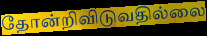
தோன்றிவிடுவதில்லை